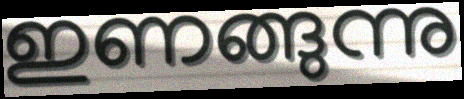
ഇണങ്ങുന്നു